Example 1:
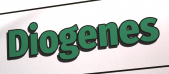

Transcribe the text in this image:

Diogenes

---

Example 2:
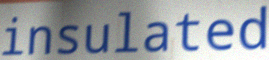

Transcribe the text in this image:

insulated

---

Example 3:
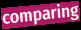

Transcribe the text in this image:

comparing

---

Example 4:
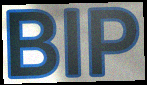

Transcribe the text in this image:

BIP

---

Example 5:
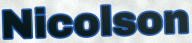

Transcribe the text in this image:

Nicolson